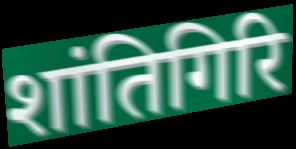
शांतिगिरि